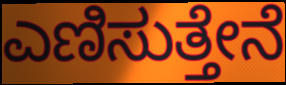
ಎಣಿಸುತ್ತೇನೆ